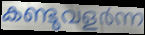
കണ്ടുവളർന്ന